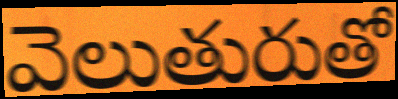
వెలుతురుతో